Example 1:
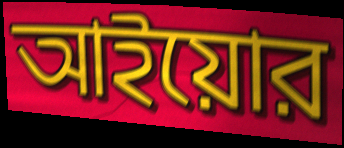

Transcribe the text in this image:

আইয়োর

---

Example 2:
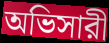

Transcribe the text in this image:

অভিসারী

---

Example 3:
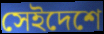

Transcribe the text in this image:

সেইদেশে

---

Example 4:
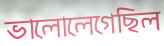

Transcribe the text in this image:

ভালোলেগেছিল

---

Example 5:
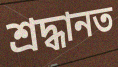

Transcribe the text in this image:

শ্রদ্ধানত